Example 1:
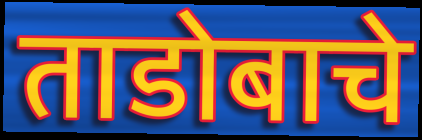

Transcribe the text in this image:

ताडोबाचे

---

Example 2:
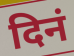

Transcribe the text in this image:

दिनं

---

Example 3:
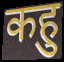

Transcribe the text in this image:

कहु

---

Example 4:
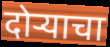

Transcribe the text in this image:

दोर्‍याचा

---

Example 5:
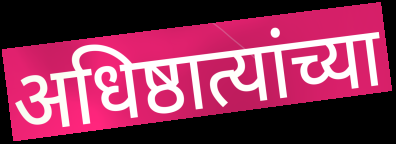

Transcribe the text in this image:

अधिष्ठात्यांच्या